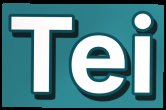
Tei